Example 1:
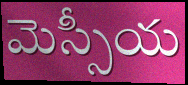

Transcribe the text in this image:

మెస్సీయ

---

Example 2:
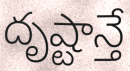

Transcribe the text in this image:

దృష్టాన్తే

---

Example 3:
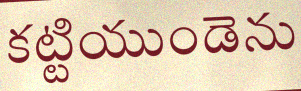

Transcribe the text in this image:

కట్టియుండెను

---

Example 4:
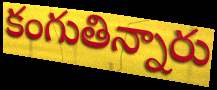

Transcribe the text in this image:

కంగుతిన్నారు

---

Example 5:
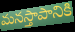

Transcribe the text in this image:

మనస్తాపానికి